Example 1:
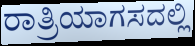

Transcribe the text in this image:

ರಾತ್ರಿಯಾಗಸದಲ್ಲಿ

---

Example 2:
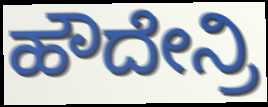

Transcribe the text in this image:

ಹೌದೇನ್ರಿ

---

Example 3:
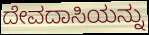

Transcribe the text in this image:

ದೇವದಾಸಿಯನ್ನು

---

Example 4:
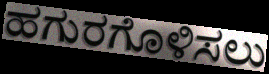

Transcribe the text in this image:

ಹಗುರಗೊಳಿಸಲು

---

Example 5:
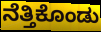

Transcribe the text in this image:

ನೆತ್ತಿಕೊಂಡು